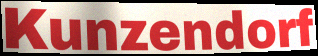
Kunzendorf